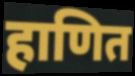
हाणित